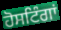
ਹੋਸਟਿੰਗਾਂ